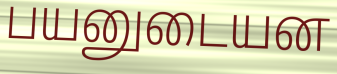
பயனுடையன